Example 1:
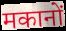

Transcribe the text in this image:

मकानों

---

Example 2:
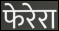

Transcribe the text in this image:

फेरेरा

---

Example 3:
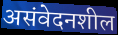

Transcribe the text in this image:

असंवेदनशील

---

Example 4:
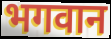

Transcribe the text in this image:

भगवान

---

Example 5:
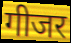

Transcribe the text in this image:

गीजर